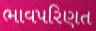
ભાવપરિણત